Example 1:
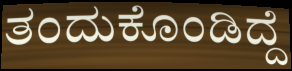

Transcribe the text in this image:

ತಂದುಕೊಂಡಿದ್ದೆ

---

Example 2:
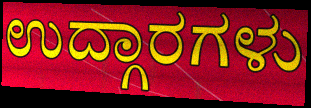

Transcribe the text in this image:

ಉದ್ಗಾರಗಳು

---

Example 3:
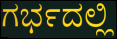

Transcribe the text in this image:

ಗರ್ಭದಲ್ಲಿ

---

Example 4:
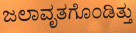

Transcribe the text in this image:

ಜಲಾವೃತಗೊಂಡಿತ್ತು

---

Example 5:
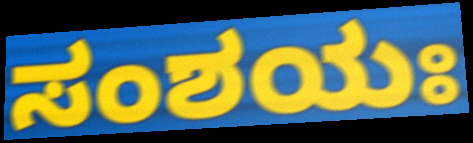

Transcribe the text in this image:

ಸಂಶಯಃ